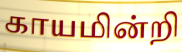
காயமின்றி